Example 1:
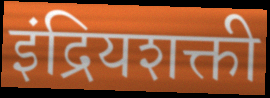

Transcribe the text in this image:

इंद्रियशक्ती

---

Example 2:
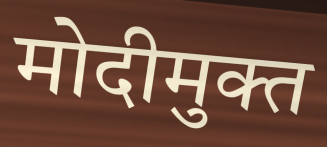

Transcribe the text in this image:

मोदीमुक्त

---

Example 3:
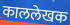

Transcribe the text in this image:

काललेखक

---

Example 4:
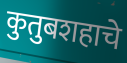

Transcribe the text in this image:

कुतुबशहाचे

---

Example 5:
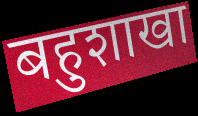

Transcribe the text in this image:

बहुशाखा